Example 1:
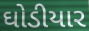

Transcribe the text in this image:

ઘોડીયાર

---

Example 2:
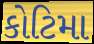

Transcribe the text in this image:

કોટિમા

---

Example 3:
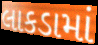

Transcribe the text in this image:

લાકડામાં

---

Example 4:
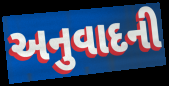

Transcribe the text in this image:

અનુવાદની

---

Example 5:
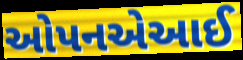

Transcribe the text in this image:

ઓપનએઆઈ